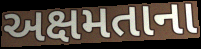
અક્ષમતાના